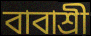
বাবাশ্রী